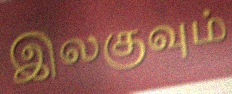
இலகுவும்